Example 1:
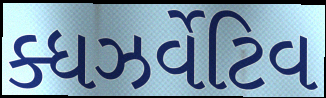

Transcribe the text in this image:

ક્ધઝર્વેટિવ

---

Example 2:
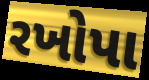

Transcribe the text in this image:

રખોપા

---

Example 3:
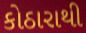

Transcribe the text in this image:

કોઠારાથી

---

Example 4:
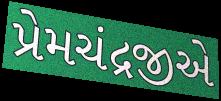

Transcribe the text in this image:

પ્રેમચંદ્રજીએ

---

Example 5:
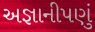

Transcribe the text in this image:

અજ્ઞાનીપણું